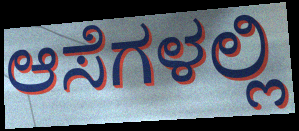
ಆಸೆಗಳಲ್ಲಿ